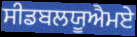
ਸੀਡਬਲਯੂਐਮਏ